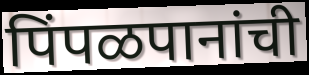
पिंपळपानांची